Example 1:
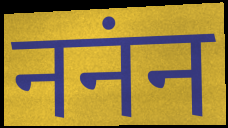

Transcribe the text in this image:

ननंन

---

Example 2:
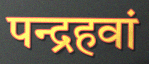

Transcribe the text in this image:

पन्द्रहवां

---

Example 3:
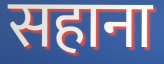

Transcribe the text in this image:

सहाना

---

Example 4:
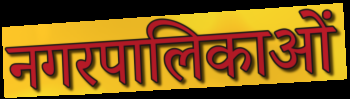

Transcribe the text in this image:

नगरपालिकाओं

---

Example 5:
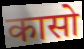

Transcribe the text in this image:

कासो